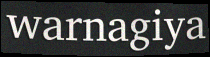
warnagiya